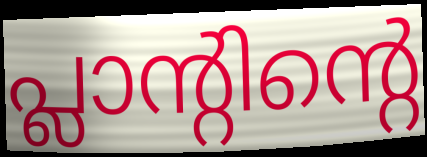
പ്ലാന്റിന്റെ